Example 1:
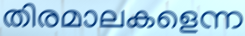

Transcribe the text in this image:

തിരമാലകളെന്ന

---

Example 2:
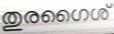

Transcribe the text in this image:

തുരഗൈശ്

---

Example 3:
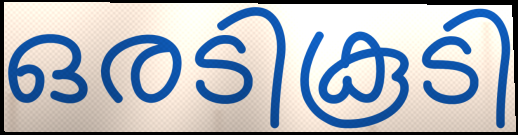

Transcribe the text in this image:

ഒരടികൂടി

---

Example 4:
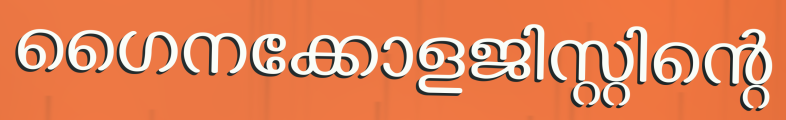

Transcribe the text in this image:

ഗൈനക്കോളജിസ്റ്റിന്റെ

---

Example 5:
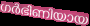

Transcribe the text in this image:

ഗർഭിണിയായ